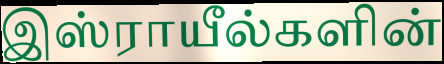
இஸ்ராயீல்களின்